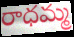
రాధమ్మ